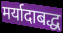
मर्यादाबद्ध